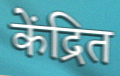
केंद्रित